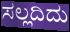
ಸಲ್ಲದಿದು